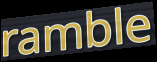
ramble